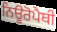
ਨਿਊਰੋਪੈਥੀ